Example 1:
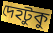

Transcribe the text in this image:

দেহটুকু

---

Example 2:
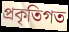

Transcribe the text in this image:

প্রকৃতিগত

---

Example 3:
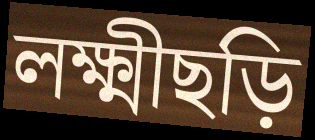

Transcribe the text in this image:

লক্ষ্মীছড়ি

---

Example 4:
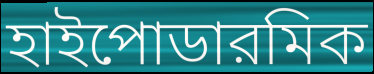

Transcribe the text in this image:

হাইপোডারমিক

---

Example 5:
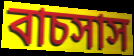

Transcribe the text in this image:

বাচসাস